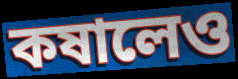
কষালেও